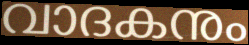
വാദകനും